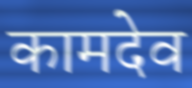
कामदेव